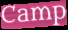
Camp